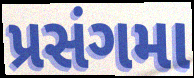
પ્રસંગમા